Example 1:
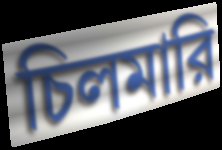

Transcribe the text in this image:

চিলমারি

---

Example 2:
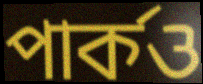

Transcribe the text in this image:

পার্কও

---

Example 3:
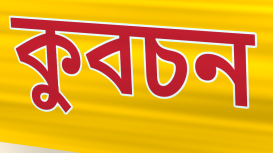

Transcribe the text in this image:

কুবচন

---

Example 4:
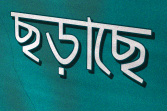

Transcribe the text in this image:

ছড়াছে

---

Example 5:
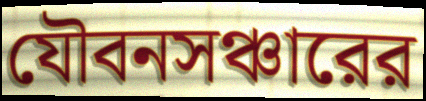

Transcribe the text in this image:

যৌবনসঞ্চারের